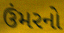
ઉંમરનો